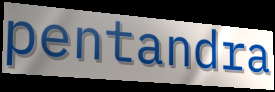
pentandra